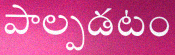
పాల్పడటం